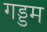
गड्डम